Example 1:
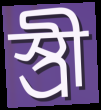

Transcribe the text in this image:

স্ত্ৰী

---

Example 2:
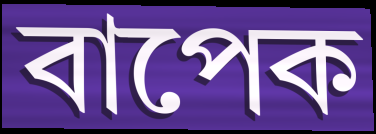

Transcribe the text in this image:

বাপেক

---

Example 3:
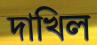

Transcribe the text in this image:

দাখিল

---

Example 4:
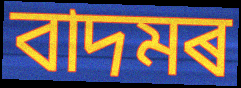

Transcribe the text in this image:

বাদমৰ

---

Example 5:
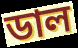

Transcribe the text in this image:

ডাল